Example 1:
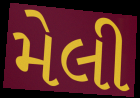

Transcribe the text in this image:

મેલી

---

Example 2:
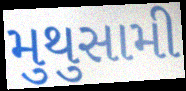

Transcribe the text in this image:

મુથુસામી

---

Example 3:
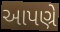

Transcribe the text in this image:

આપણ્રે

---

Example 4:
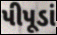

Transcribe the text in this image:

પીપૂડાં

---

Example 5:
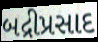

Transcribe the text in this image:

બદ્રીપ્રસાદ